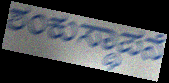
ಶಂಕುಸ್ಥಾಪನೆ